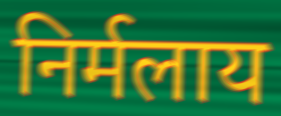
निर्मलाय